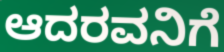
ಆದರವನಿಗೆ